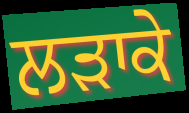
ਲੜਾਕੇ